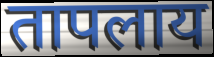
तापलाय